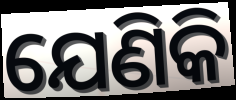
ଯେଣିକି